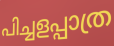
പിച്ചളപ്പാത്ര